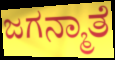
ಜಗನ್ಮಾತೆ